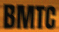
BMTC